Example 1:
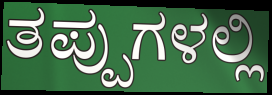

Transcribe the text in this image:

ತಪ್ಪುಗಳಲ್ಲಿ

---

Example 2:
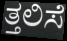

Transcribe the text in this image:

ತ್ತಲಿಸೆ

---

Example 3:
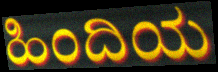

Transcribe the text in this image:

ಹಿಂದಿಯ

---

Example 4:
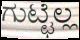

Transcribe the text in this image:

ಗುಟ್ಟೆಲ್ಲ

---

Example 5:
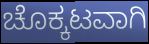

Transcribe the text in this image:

ಚೊಕ್ಕಟವಾಗಿ